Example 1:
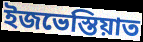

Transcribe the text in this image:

ইজভেস্তিয়াত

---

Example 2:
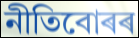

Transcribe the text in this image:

নীতিবোৰৰ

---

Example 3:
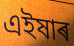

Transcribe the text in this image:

এইষাৰ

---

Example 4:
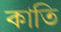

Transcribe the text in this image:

কাতি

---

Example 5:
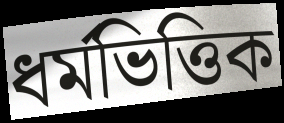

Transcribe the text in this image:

ধৰ্মভিত্তিক